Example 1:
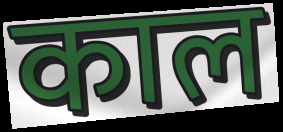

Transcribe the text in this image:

काल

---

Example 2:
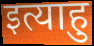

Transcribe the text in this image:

इत्याहु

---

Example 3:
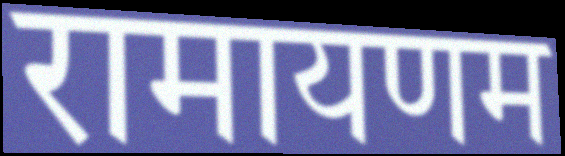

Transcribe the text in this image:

रामायणम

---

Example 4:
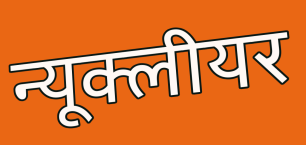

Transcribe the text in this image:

न्यूक्लीयर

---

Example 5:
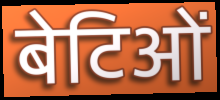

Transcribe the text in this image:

बेटिओं